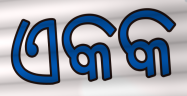
ଏକକ